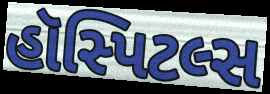
હૉસ્પિટલ્સ